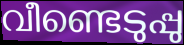
വീണ്ടെടുപ്പു